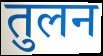
तुलन